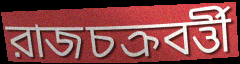
রাজচক্রবর্ত্তী